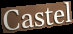
Castel